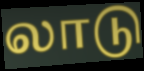
லாடு